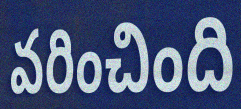
వరించింది